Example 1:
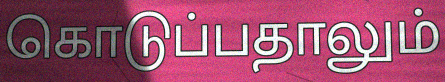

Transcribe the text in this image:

கொடுப்பதாலும்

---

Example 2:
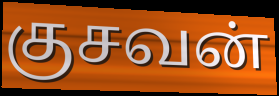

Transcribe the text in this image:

குசவன்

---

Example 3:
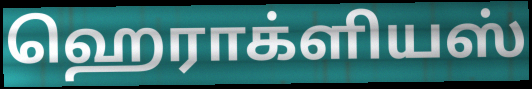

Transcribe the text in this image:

ஹெராக்ளியஸ்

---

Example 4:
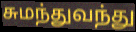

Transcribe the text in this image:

சுமந்துவந்து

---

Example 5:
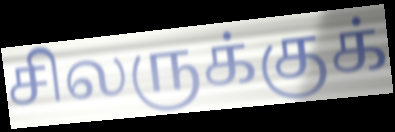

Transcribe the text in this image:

சிலருக்குக்